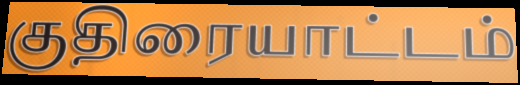
குதிரையாட்டம்